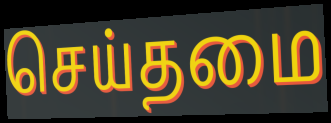
செய்தமை